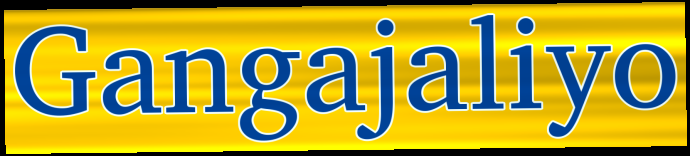
Gangajaliyo